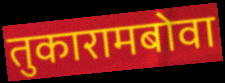
तुकारामबोवा